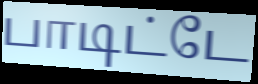
பாடிட்டே